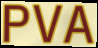
PVA